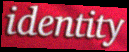
identity